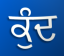
ਕੁੰਦ